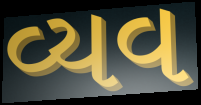
વ્યવ